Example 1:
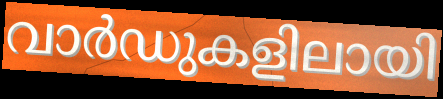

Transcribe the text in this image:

വാർഡുകളിലായി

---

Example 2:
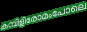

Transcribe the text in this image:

കമ്പിളിരോമംപോലെ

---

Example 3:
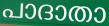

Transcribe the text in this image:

പാദാതാ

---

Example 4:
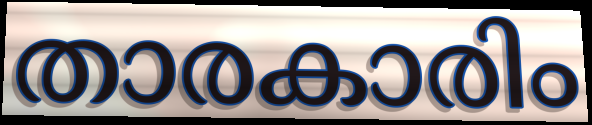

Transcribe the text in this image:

താരകാരിം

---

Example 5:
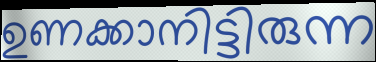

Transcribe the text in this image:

ഉണക്കാനിട്ടിരുന്ന